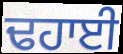
ਢਹਾਈ